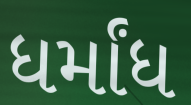
ધર્માંધ